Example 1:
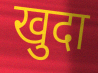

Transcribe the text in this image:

खुदा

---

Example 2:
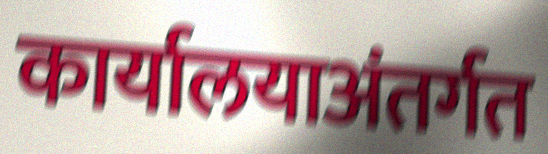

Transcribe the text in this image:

कार्यालयाअंतर्गत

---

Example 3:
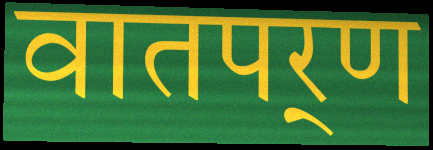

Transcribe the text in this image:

वातपर्ण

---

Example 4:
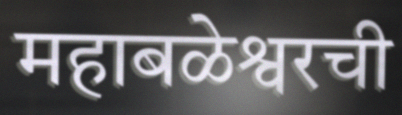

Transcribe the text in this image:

महाबळेश्वरची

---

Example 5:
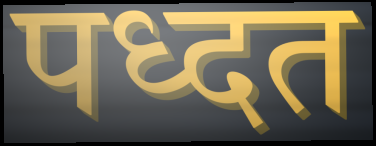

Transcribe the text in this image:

पध्दत